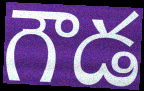
గౌడ